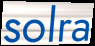
solra